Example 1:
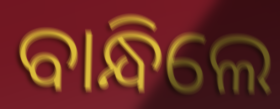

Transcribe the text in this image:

ବାନ୍ଧିଲେ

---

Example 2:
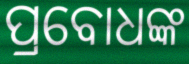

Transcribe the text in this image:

ପ୍ରବୋଧଙ୍କ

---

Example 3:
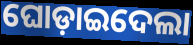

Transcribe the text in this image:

ଘୋଡ଼ାଇଦେଲା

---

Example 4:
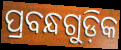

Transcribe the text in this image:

ପ୍ରବନ୍ଧଗୁଡ଼ିକ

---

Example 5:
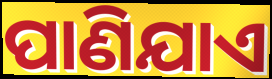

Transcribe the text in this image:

ପାଣିଯାଏ